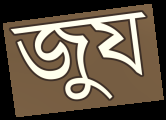
জুয